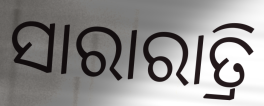
ସାରାରାତ୍ରି